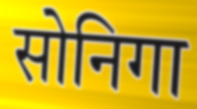
सोनिगा